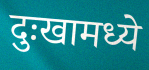
दुःखामध्ये